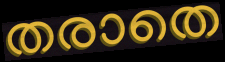
തരാതെ